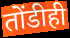
तोंडीही